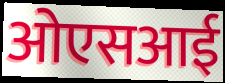
ओएसआई